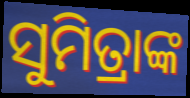
ସୁମିତ୍ରାଙ୍କ